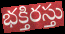
భక్తిరస్తు